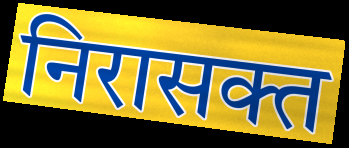
निरासक्त